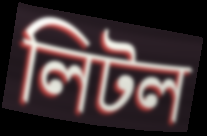
লিটল